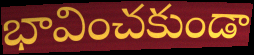
భావించకుండా